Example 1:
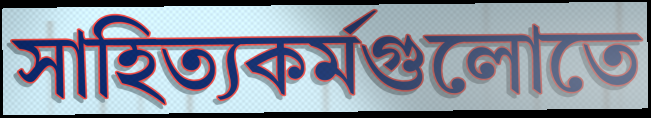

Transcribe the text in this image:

সাহিত্যকর্মগুলোতে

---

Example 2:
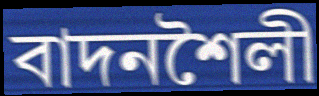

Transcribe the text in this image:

বাদনশৈলী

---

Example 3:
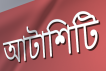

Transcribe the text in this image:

আটাশিটি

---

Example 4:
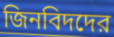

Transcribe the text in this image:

জিনবিদদের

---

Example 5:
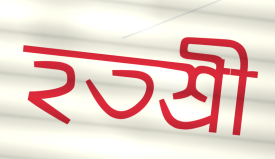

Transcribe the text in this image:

হতশ্রী